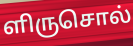
ளிருசொல்